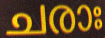
ചരാഃ